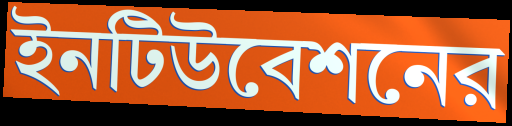
ইনটিউবেশনের